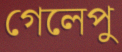
গেলেপু